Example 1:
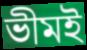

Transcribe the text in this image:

ভীমই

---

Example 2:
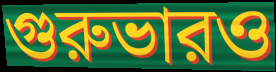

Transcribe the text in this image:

গুরুভারও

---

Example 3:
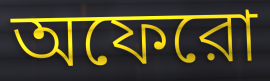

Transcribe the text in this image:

অফেরো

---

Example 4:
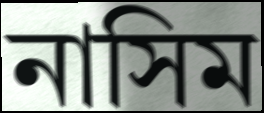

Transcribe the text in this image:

নাসিম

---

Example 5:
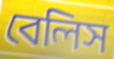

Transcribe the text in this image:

বেলিস